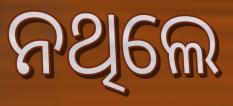
ନଥିଲେ